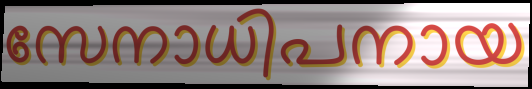
സേനാധിപനായ